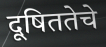
दूषिततेचे